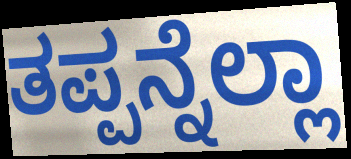
ತಪ್ಪನ್ನೆಲ್ಲಾ